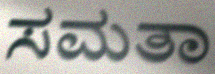
ಸಮತಾ